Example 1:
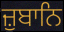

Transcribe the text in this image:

ਜ਼ੁਬਾਨਿ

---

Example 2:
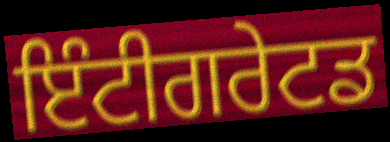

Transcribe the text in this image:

ਇੰਟੀਗਰੇਟਡ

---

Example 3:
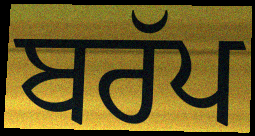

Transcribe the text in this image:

ਬਰੱਪ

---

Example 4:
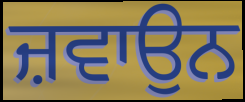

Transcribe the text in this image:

ਜ਼ਵਾਉਨ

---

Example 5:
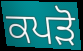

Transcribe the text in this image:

ਕਪੜੋ